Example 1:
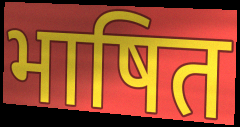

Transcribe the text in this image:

भाषित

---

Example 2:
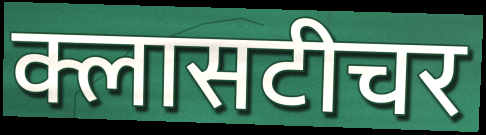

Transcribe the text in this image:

क्लासटीचर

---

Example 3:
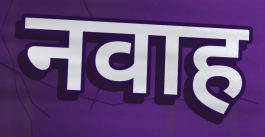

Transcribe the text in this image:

नवाह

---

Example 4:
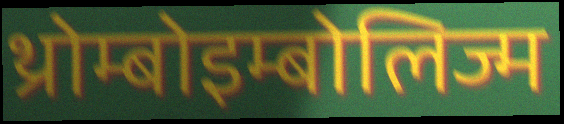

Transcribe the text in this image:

थ्रोम्बोइम्बोलिज्म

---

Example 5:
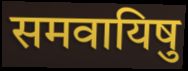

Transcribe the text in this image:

समवायिषु